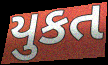
યુકત